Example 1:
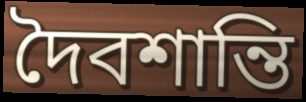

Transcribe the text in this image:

দৈবশান্তি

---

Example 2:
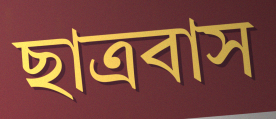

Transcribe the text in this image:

ছাত্রবাস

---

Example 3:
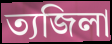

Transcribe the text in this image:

ত্যজিলা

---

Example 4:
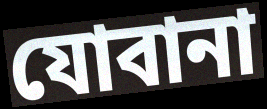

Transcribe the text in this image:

যোবানা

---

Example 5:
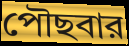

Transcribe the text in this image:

পৌছবার